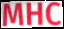
MHC